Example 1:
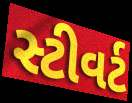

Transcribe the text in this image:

સ્ટીવર્ટ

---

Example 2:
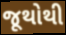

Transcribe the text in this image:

જૂથોથી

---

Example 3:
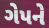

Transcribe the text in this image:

ગેપને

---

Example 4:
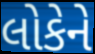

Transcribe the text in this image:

લોકેને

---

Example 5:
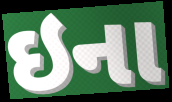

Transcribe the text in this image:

ઇના